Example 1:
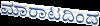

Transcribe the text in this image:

ಮಾರಾಟದಿಂದ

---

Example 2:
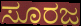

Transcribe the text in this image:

ಸೂರಜ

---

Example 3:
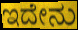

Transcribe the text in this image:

ಇದೇನು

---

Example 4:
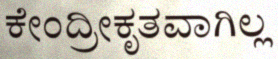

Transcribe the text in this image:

ಕೇಂದ್ರೀಕೃತವಾಗಿಲ್ಲ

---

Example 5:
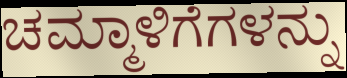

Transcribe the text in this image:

ಚಮ್ಮಾಳಿಗೆಗಳನ್ನು